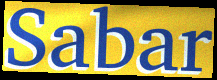
Sabar